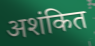
अशंकित